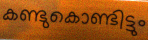
കണ്ടുകൊണ്ടിട്ടും